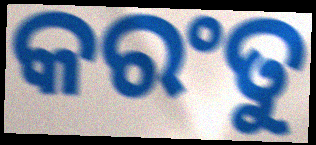
କରଂତୁ